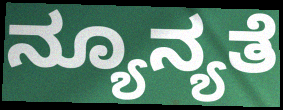
ನ್ಯೂನ್ಯತೆ